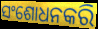
ସଂଶୋଧନକରି